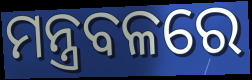
ମନ୍ତ୍ରବଳରେ